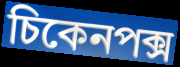
চিকেনপক্স